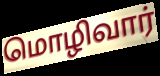
மொழிவார்